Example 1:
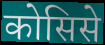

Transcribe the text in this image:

कोसिसे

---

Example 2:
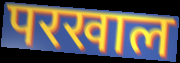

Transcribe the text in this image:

परखाल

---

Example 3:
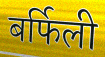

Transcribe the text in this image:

बर्फिली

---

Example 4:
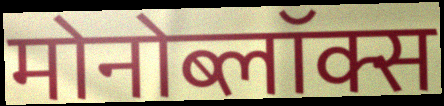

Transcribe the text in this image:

मोनोब्लॉक्स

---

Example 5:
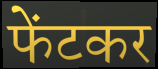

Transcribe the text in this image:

फेंटकर